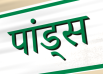
पांड्स